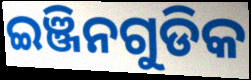
ଇଞ୍ଜିନଗୁଡିକ